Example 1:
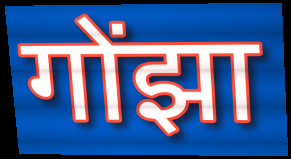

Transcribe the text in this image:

गोंझा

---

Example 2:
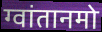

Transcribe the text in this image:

ग्वांतानमो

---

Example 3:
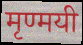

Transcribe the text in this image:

मृण्मयी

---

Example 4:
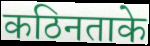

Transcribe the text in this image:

कठिनताके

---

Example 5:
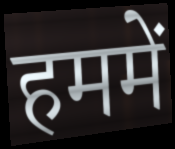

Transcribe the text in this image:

हममें